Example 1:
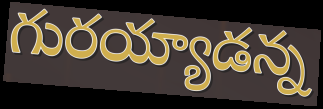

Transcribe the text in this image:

గురయ్యాడన్న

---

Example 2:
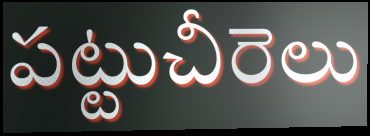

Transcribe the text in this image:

పట్టుచీరెలు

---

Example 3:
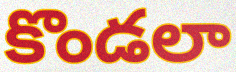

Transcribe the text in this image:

కొండలా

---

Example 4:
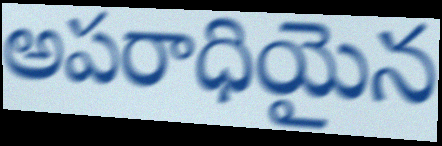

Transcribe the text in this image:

అపరాధియైన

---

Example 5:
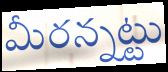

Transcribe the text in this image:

మీరన్నట్టు